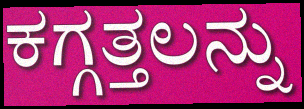
ಕಗ್ಗತ್ತಲನ್ನು